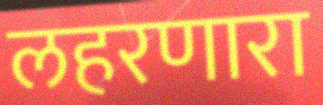
लहरणारा